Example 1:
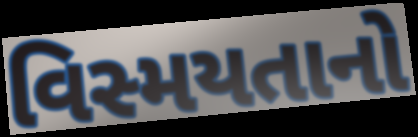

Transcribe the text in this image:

વિસ્મયતાનો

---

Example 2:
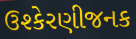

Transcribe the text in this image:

ઉશ્કેરણીજનક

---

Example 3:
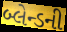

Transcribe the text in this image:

બ્લેન્ડની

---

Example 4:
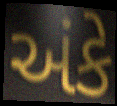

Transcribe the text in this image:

અંકે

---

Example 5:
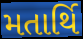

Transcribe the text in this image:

મતાર્થિ